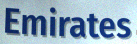
Emirates